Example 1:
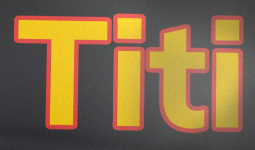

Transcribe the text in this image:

Titi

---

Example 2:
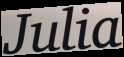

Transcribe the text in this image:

Julia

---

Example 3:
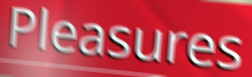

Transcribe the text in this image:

Pleasures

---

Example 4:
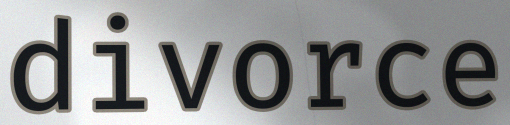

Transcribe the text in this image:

divorce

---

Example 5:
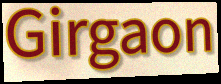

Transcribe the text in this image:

Girgaon